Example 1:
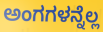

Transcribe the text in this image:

ಅಂಗಗಳನ್ನೆಲ್ಲ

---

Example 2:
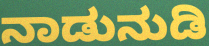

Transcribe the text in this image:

ನಾಡುನುಡಿ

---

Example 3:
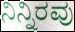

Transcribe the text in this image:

ನಿನ್ನಿರವು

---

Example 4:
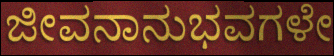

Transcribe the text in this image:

ಜೀವನಾನುಭವಗಳೇ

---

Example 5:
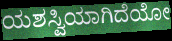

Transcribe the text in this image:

ಯಶಸ್ವಿಯಾಗಿದೆಯೋ